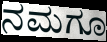
ನಮಗೂ